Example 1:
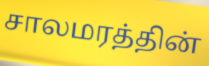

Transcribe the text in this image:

சாலமரத்தின்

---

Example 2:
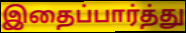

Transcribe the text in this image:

இதைப்பார்த்து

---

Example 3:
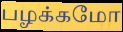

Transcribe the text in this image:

பழக்கமோ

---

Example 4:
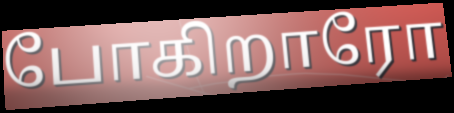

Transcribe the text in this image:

போகிறாரோ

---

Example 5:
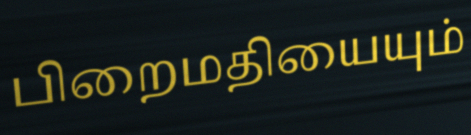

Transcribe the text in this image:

பிறைமதியையும்